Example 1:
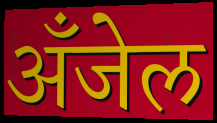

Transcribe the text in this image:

अँजेल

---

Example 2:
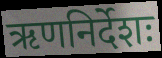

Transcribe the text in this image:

ऋणनिर्देशः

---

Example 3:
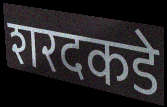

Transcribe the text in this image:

शरदकडे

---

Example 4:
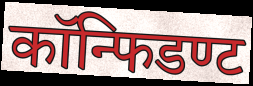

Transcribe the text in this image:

कॉन्फिडण्ट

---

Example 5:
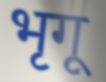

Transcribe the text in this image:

भृगू